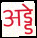
अड्डे